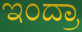
ಇಂದ್ರಾ